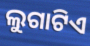
ଲୁଗାଟିଏ